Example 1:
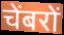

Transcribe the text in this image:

चेंबरों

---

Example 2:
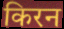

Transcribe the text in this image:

किरन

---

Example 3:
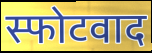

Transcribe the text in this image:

स्फोटवाद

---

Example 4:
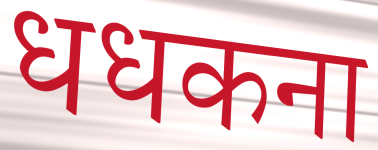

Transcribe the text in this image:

धधकना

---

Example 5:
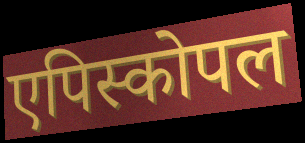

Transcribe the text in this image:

एपिस्कोपल